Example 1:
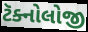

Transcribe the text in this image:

ટૅક્નોલોજી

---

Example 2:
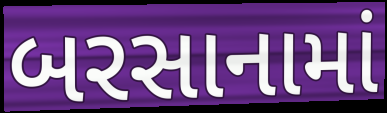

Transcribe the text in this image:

બરસાનામાં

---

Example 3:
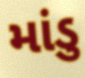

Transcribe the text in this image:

માંડુ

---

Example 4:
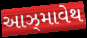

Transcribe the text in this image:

આઝ્માવેથ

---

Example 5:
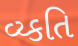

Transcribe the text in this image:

વ્ય્કતિ